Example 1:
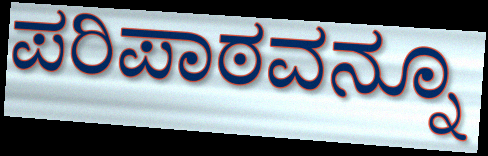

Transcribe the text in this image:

ಪರಿಪಾಠವನ್ನೂ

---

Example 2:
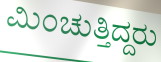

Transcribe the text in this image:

ಮಿಂಚುತ್ತಿದ್ದರು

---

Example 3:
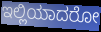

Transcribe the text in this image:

ಇಲ್ಲಿಯಾದರೋ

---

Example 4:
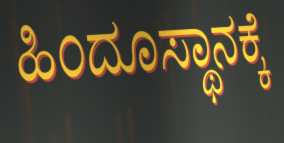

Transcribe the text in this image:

ಹಿಂದೂಸ್ಥಾನಕ್ಕೆ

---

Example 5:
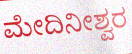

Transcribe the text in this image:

ಮೇದಿನೀಶ್ವರ